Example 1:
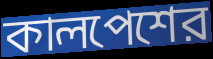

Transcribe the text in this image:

কালপেশের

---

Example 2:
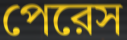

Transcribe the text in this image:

পেরেস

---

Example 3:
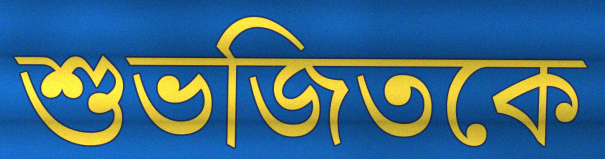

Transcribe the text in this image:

শুভজিতকে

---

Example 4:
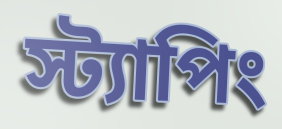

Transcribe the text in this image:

স্ট্যাপিং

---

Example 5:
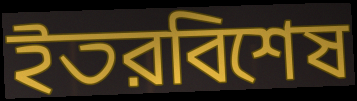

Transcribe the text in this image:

ইতরবিশেষ